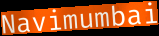
Navimumbai